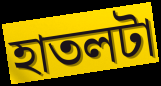
হাতলটা